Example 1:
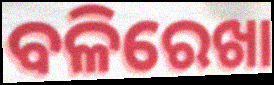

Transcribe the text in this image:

ବଳିରେଖା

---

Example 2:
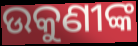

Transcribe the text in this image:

ଉକୁଣୀଙ୍କ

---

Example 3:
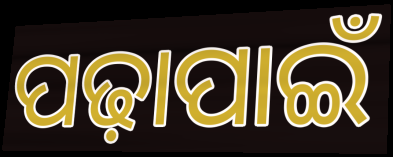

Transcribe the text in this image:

ପଢ଼ାପାଇଁ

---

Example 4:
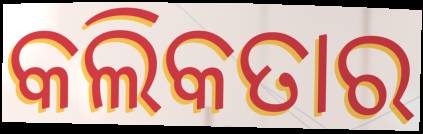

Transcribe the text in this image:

କଲିକତାର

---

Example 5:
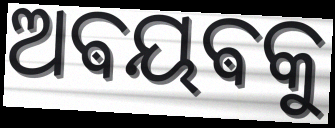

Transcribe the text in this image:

ଅଵୟଵକୁ